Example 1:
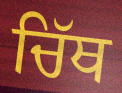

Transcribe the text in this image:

ਚਿੱਥ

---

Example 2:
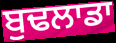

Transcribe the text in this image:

ਬੁਢਲਾਡਾ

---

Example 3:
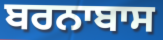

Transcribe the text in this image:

ਬਰਨਾਬਾਸ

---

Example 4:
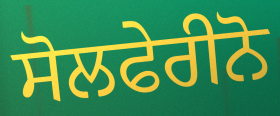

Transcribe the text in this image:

ਸੋਲਫੇਰੀਨੋ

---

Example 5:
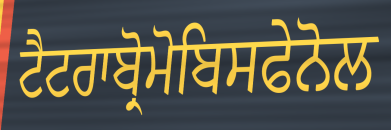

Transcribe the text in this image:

ਟੈਟਰਾਬ੍ਰੋਮੋਬਿਸਫੇਨੋਲ